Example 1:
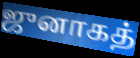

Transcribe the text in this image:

ஜுனாகத்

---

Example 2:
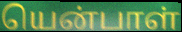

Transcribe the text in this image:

யென்பாள்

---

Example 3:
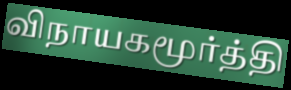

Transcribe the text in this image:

விநாயகமூர்த்தி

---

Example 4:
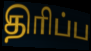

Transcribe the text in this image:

திரிப்ப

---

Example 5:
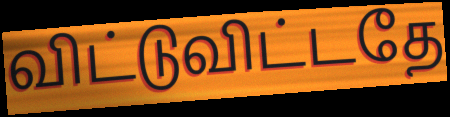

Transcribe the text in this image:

விட்டுவிட்டதே